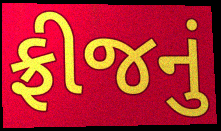
ફ્રીજનું